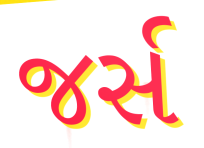
જર્સ